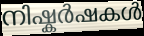
നിഷ്കർഷകൾ